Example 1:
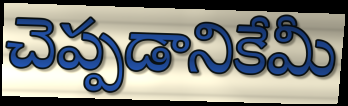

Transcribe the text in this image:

చెప్పడానికేమీ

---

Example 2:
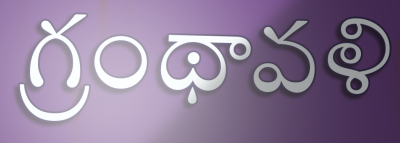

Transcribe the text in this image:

గ్రంథావళి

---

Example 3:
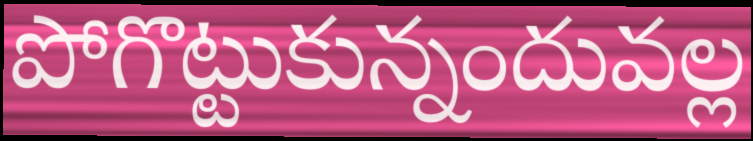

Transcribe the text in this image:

పోగొట్టుకున్నందువల్ల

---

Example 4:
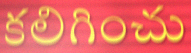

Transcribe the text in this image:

కలిగించు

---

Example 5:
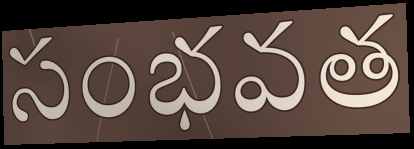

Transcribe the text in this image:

సంభవత